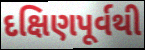
દક્ષિણપૂર્વથી